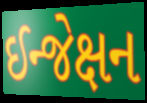
ઈન્જેક્ષન